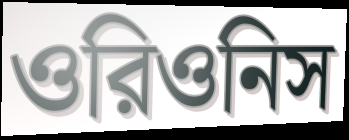
ওরিওনিস